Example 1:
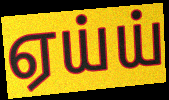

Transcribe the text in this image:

ஏய்ய்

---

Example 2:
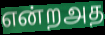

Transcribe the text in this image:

என்றஅத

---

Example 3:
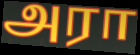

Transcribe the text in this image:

அரா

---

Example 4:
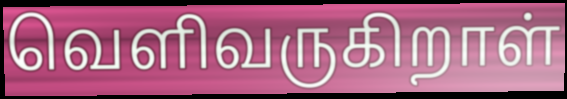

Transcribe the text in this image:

வெளிவருகிறாள்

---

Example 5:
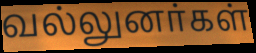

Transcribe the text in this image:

வல்லுனர்கள்